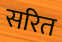
सरित